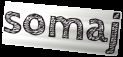
somaj